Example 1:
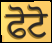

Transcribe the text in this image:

ਫੋਟੋ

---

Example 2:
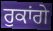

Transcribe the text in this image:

ਰੁਕਾਂਗੇ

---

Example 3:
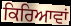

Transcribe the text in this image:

ਕਿਰਿਆਵਾਂ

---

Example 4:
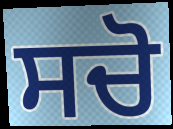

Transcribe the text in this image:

ਸਚੋ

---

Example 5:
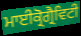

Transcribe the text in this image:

ਮਾਈਕ੍ਰੋਗ੍ਰੈਵਿਟੀ